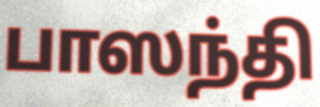
பாஸந்தி